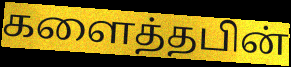
களைத்தபின்